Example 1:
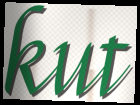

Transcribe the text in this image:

kut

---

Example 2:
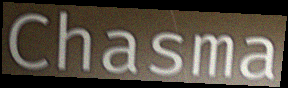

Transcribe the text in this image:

Chasma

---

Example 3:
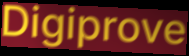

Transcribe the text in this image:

Digiprove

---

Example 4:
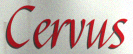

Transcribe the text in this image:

Cervus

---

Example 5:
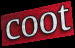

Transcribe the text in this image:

coot